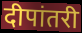
दीपांतरी